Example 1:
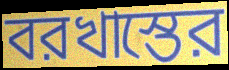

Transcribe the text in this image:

বরখাস্তের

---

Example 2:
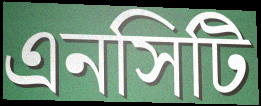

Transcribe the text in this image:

এনসিটি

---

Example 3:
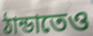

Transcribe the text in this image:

ঠান্ডাতেও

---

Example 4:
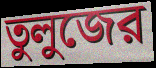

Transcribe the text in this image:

তুলুজের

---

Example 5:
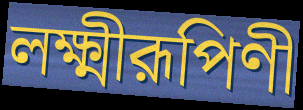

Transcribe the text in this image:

লক্ষ্মীরূপিণী